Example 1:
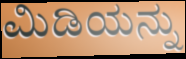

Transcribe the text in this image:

ಮಿಡಿಯನ್ನು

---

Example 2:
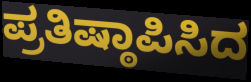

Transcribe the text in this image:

ಪ್ರತಿಷ್ಠಾಪಿಸಿದ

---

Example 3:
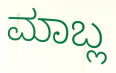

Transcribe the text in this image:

ಮಾಬ್ಲ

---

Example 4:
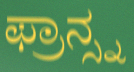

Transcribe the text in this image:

ಫ್ರಾನ್ಸ್ನ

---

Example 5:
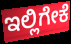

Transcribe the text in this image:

ಇಲ್ಲಿಗೇಕೆ